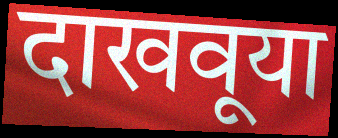
दाखवूया